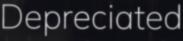
Depreciated